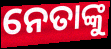
ନେତାଙ୍କୁ